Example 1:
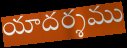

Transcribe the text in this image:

యాదర్శము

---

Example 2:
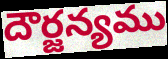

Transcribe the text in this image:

దౌర్జన్యము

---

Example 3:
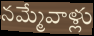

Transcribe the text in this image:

నమ్మేవాళ్లు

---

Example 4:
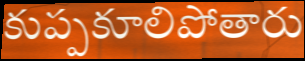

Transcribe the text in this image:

కుప్పకూలిపోతారు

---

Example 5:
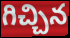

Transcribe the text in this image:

గిచ్చిన